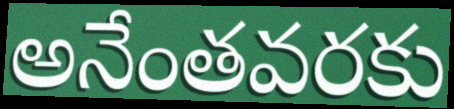
అనేంతవరకు